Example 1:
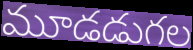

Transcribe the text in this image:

మూడడుగల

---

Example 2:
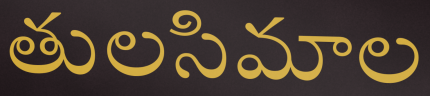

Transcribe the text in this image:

తులసిమాల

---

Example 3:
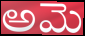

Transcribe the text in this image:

అమె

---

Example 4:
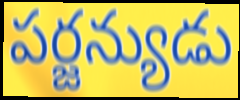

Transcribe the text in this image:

పర్జన్యుడు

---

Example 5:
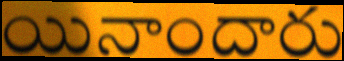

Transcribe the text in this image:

యినాందారు